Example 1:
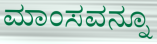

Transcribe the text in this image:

ಮಾಂಸವನ್ನೂ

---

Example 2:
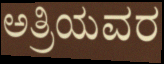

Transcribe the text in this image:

ಅತ್ರಿಯವರ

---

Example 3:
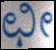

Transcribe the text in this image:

ಛೀ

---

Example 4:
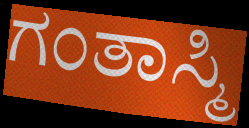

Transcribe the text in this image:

ಗಂತಾಸ್ಮಿ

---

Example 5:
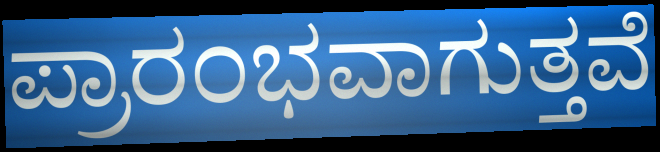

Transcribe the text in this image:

ಪ್ರಾರಂಭವಾಗುತ್ತವೆ